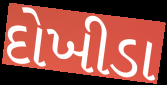
દોખીડા